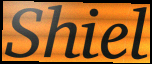
Shiel